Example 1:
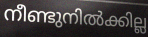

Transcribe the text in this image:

നീണ്ടുനിൽക്കില്ല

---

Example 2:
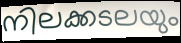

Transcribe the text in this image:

നിലക്കടലയും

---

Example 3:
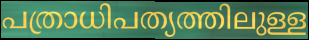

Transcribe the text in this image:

പത്രാധിപത്യത്തിലുള്ള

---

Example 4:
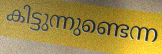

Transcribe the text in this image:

കിട്ടുന്നുണ്ടെന്ന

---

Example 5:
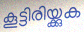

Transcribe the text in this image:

കൂട്ടിരിയ്ക്കുക